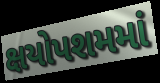
ક્ષયોપશમમાં